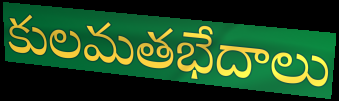
కులమతభేదాలు